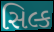
સિલ્ક